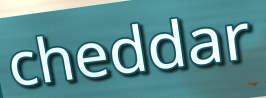
cheddar